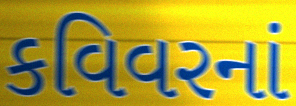
કવિવરનાં